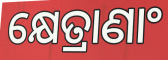
କ୍ଷେତ୍ରାଣାଂ